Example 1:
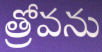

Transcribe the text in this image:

త్రోవను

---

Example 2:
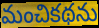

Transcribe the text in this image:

మంచికథను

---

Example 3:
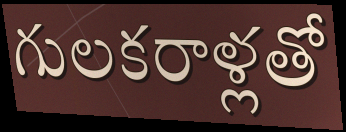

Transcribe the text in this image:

గులకరాళ్లతో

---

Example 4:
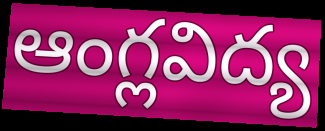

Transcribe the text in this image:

ఆంగ్లవిద్య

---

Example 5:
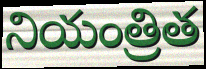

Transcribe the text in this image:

నియంత్రిత